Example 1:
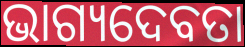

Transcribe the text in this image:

ଭାଗ୍ୟଦେବତା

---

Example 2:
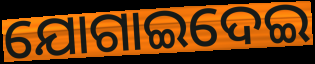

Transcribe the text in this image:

ଯୋଗାଇଦେଇ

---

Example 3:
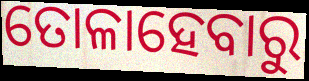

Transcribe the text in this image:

ତୋଳାହେବାରୁ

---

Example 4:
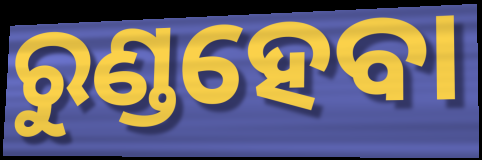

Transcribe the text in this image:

ରୁଣ୍ଡହେବା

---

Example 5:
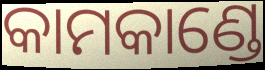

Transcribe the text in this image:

କାମକାଣ୍ଡେ